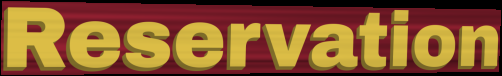
Reservation